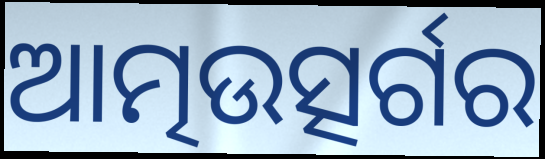
ଆତ୍ମଉତ୍ସର୍ଗର